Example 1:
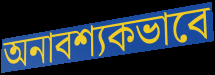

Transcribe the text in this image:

অনাবশ্যকভাবে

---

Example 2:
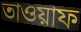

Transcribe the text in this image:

তাওয়াফ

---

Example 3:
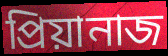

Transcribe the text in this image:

প্রিয়ানাজ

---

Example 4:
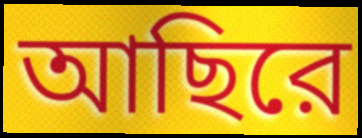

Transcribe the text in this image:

আছিরে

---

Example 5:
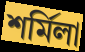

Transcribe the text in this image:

শর্মিলা